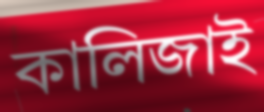
কালিজাই